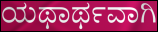
ಯಥಾರ್ಥವಾಗಿ